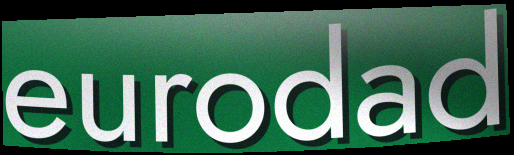
eurodad